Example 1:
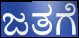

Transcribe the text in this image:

ಜತಗೆ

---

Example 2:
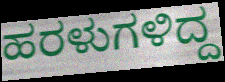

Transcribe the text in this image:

ಹರಳುಗಳಿದ್ದ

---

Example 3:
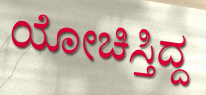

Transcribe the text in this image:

ಯೋಚಿಸ್ತಿದ್ದ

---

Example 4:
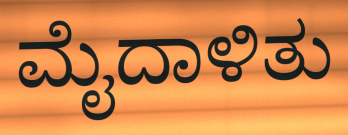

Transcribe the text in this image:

ಮೈದಾಳಿತು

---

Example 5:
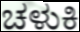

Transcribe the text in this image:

ಚಳುಕಿ